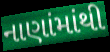
નાણાંમાંથી